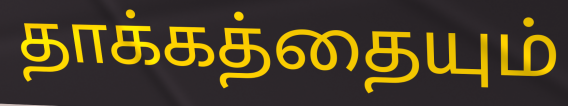
தாக்கத்தையும்